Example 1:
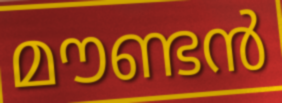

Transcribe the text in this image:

മൗണ്ടൻ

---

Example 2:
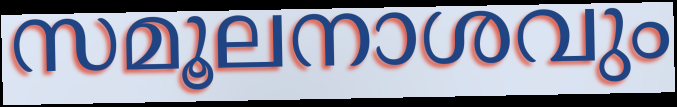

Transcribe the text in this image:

സമൂലനാശവും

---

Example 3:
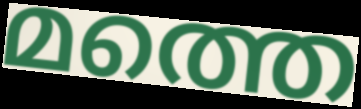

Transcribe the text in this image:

മത്തെ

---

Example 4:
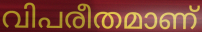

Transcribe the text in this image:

വിപരീതമാണ്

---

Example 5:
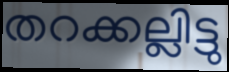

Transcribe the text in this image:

തറക്കല്ലിട്ടു